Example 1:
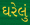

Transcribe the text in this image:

ઘરેલું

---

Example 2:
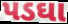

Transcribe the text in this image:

પડઘા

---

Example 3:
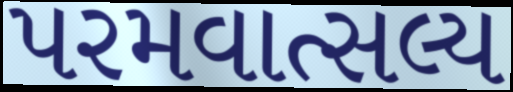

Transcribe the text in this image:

પરમવાત્સલ્ય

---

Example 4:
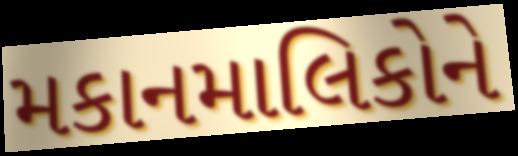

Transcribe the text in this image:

મકાનમાલિકોને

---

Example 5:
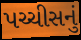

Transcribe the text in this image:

પચ્ચીસનું